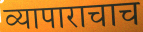
व्यापाराचाच